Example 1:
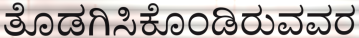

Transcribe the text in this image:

ತೊಡಗಿಸಿಕೊಂಡಿರುವವರ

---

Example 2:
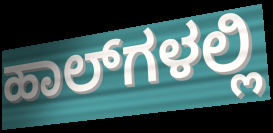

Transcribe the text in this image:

ಹಾಲ್‌ಗಳಲ್ಲಿ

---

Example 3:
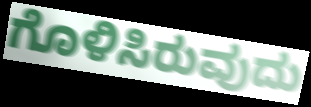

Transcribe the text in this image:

ಗೊಳಿಸಿರುವುದು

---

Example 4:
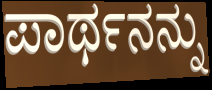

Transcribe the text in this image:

ಪಾರ್ಥನನ್ನು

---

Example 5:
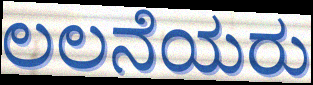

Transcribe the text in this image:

ಲಲನೆಯರು